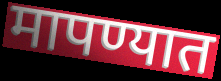
मापण्यात